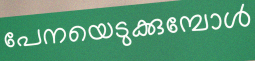
പേനയെടുക്കുമ്പോൾ